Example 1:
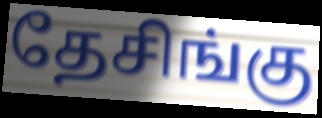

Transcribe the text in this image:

தேசிங்கு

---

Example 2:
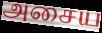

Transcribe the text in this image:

அசைய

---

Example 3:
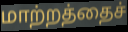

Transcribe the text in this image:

மாற்றத்தைச்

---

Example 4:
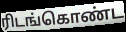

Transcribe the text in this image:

ரிடங்கொண்ட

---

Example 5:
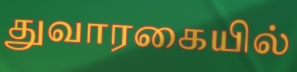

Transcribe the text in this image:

துவாரகையில்